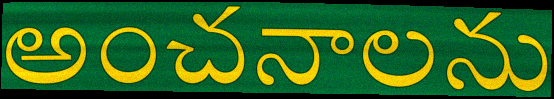
అంచనాలను